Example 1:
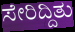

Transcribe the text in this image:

ಸೇರಿದ್ದಿತು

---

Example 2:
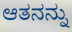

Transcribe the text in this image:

ಆತನನ್ನು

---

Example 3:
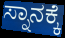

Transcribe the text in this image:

ಸ್ನಾನಕ್ಕೆ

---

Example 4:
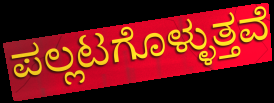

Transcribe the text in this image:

ಪಲ್ಲಟಗೊಳ್ಳುತ್ತವೆ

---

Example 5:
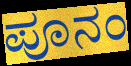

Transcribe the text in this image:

ಪೂನಂ